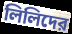
লিলিদের